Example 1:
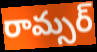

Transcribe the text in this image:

రామ్సర్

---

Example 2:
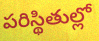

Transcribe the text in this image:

పరిస్థితుల్లో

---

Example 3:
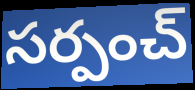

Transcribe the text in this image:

సర్పంచ్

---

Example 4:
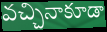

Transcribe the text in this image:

వచ్చినాకూడా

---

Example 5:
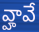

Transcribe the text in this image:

వ్హావే